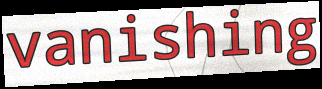
vanishing